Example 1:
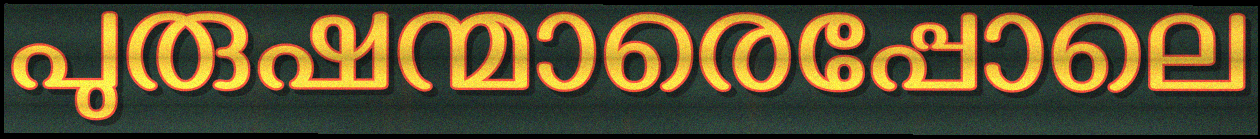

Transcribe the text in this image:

പുരുഷന്മാരെപ്പോലെ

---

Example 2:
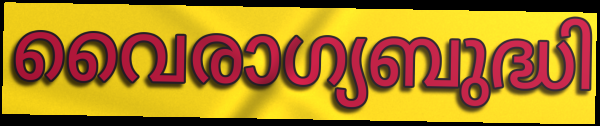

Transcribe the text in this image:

വൈരാഗ്യബുദ്ധി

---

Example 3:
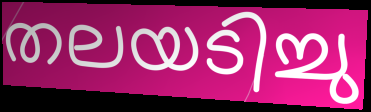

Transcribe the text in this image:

തലയടിച്ചു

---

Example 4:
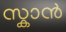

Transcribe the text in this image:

സ്കാൻ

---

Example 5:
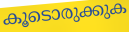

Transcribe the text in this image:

കൂടൊരുക്കുക